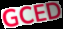
GCED